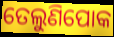
ତେଲୁଣିପୋକ